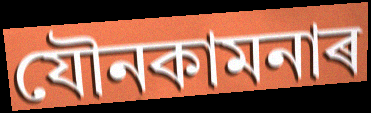
যৌনকামনাৰ